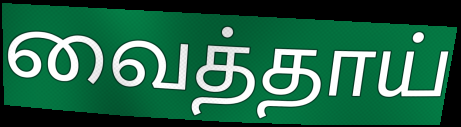
வைத்தாய்